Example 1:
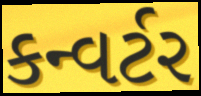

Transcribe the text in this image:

કન્વર્ટર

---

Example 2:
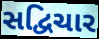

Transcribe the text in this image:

સદ્વિચાર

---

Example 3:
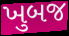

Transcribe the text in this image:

ખુબજ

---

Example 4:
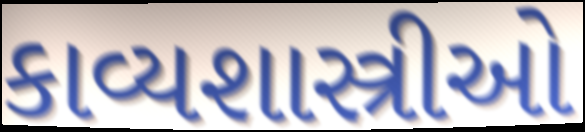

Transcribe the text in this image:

કાવ્યશાસ્ત્રીઓ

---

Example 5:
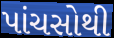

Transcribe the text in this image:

પાંચસોથી